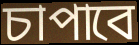
চাপাবে